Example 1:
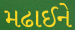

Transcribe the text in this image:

મઢાઈને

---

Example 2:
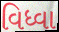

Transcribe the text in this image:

વિધ્વા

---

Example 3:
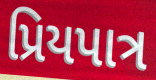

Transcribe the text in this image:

પ્રિયપાત્ર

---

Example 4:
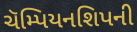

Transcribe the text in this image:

ચૅમ્પિયનશિપની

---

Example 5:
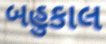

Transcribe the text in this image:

બહુકાલ